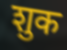
शुक